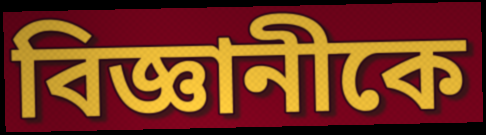
বিজ্ঞানীকে